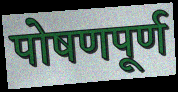
पोषणपूर्ण